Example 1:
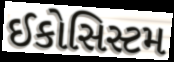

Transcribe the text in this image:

ઈકોસિસ્ટમ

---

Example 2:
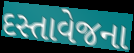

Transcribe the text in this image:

દસ્તાવેજના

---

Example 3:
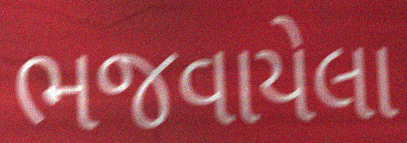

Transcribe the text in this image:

ભજવાયેલા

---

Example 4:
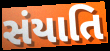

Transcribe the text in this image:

સંયાતિ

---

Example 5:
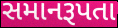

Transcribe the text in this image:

સમાનરૂપતા